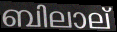
ബിലാല്